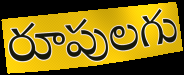
రూపులగు